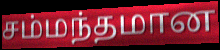
சம்மந்தமான